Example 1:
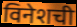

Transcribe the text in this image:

विनेशची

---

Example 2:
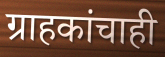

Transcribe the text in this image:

ग्राहकांचाही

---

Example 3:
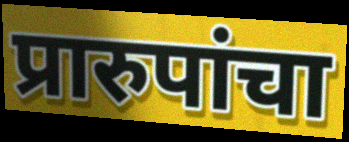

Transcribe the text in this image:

प्रारुपांचा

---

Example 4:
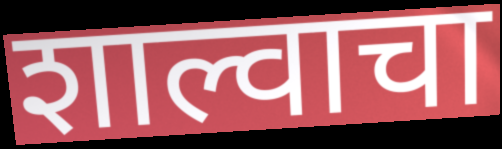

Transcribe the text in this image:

शाल्वाचा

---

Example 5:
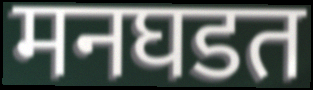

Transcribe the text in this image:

मनघडत